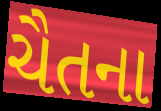
ચૈતના